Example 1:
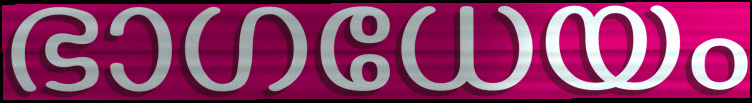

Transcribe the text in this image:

ഭാഗധേയം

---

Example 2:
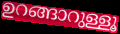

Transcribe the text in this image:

ഉറങ്ങാറുള്ളൂ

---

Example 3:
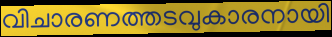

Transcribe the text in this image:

വിചാരണത്തടവുകാരനായി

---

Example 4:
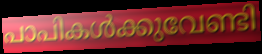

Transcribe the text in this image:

പാപികൾക്കുവേണ്ടി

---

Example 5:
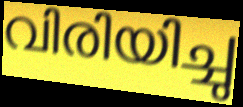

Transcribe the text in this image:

വിരിയിച്ചു